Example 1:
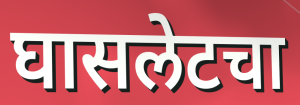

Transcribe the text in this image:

घासलेटचा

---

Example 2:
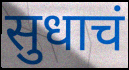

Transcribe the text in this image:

सुधाचं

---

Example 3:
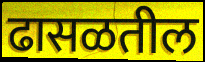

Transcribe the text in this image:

ढासळतील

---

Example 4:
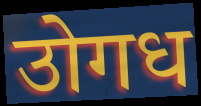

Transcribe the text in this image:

उोगध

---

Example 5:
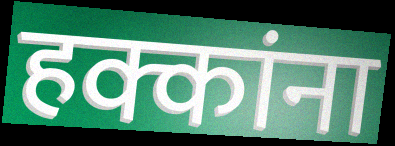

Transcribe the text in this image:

हक्कांना